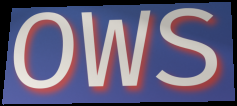
OWS